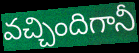
వచ్చిందిగానీ